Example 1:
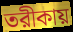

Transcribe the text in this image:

তরীকায়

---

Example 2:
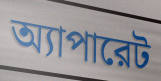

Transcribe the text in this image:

অ্যাপারেট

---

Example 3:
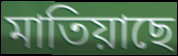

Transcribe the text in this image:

মাতিয়াছে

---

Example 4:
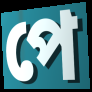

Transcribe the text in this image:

পে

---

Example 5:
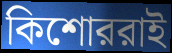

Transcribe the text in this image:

কিশোররাই